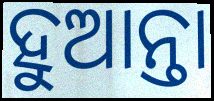
ହୁଆନ୍ତା